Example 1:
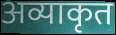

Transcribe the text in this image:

अव्याकृत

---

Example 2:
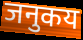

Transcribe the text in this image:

जनुकय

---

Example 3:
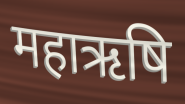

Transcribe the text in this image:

महाऋषि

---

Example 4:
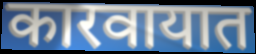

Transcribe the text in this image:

कारवायात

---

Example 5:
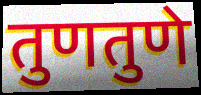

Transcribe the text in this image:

तुणतुणे